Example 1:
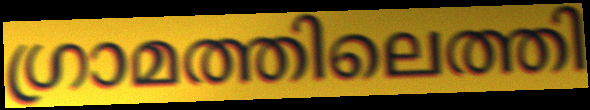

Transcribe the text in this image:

ഗ്രാമത്തിലെത്തി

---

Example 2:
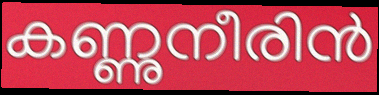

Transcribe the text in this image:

കണ്ണുനീരിൻ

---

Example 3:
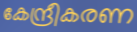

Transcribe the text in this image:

കേന്ദ്രീകരണ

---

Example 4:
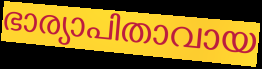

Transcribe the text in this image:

ഭാര്യാപിതാവായ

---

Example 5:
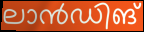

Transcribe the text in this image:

ലാൻഡിങ്